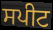
ਸਪੀਟ